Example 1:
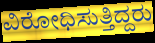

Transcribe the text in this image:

ವಿರೋಧಿಸುತ್ತಿದ್ದರು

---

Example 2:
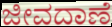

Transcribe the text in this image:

ಜೀವದಾಣೆ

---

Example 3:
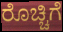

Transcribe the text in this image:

ರೊಚ್ಚಿಗೆ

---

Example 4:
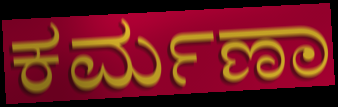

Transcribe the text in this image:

ಕರ್ಮಣಾ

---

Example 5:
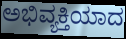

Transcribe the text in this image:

ಅಭಿವ್ಯಕ್ತಿಯಾದ